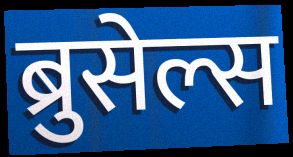
ब्रुसेल्स